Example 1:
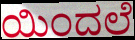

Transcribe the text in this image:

ಯಿಂದಲೆ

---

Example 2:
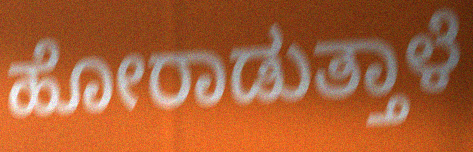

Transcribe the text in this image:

ಹೋರಾಡುತ್ತಾಳೆ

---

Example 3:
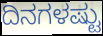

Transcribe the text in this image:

ದಿನಗಳಷ್ಟು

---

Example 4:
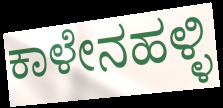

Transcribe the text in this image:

ಕಾಳೇನಹಳ್ಳಿ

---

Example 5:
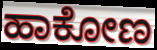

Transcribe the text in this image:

ಹಾಕೋಣ